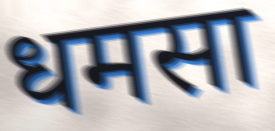
धमसा